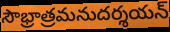
సౌభ్రాత్రమనుదర్శయన్